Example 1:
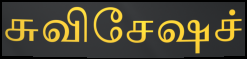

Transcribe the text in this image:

சுவிசேஷச்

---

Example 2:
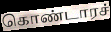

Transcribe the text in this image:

கொண்டாரச்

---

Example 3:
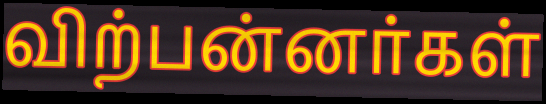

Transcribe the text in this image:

விற்பன்னர்கள்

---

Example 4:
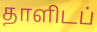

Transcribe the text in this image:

தாளிடப்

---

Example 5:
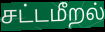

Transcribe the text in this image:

சட்டமீறல்